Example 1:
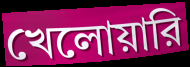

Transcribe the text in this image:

খেলোয়ারি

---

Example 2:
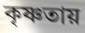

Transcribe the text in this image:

কৃষ্ণতায়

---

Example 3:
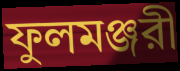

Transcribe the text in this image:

ফুলমঞ্জরী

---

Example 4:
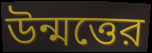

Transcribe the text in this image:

উন্মত্তের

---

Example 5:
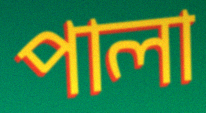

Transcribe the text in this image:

পালা